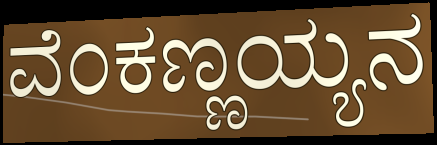
ವೆಂಕಣ್ಣಯ್ಯನ